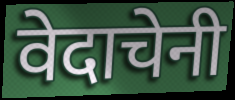
वेदाचेनी